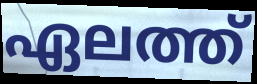
ഏലത്ത്